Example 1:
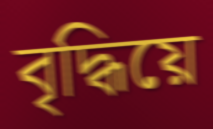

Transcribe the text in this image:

বৃদ্ধিয়ে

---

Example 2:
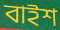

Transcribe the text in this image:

বাইশ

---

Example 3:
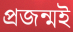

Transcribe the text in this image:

প্ৰজন্মই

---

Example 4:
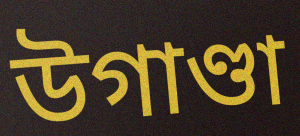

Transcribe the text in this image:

উগাণ্ডা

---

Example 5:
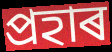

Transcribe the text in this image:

প্ৰহাৰ